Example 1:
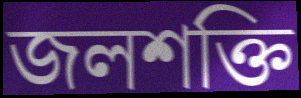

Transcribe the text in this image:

জলশক্তি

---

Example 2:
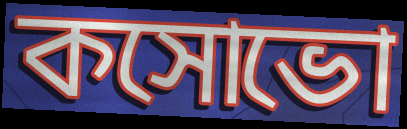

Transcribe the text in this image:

কসোভো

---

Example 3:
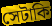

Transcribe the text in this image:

সেটাকি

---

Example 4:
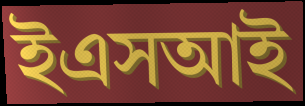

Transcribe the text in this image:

ইএসআই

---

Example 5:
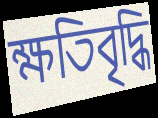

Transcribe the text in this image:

ক্ষতিবৃদ্ধি